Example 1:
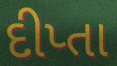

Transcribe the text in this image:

દીપ્તા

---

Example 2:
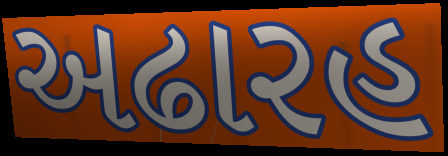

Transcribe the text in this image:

અઢારહ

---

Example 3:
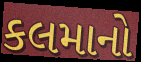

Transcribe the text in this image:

કલમાનો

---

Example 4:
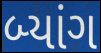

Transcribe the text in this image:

બ્યાંગ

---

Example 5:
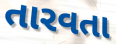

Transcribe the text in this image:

તારવતા